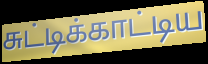
சுட்டிக்காட்டிய